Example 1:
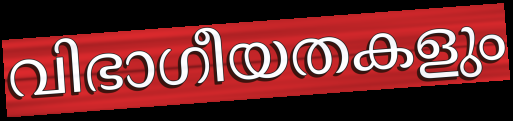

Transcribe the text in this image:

വിഭാഗീയതകളും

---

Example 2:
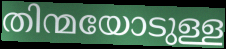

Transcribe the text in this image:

തിന്മയോടുള്ള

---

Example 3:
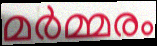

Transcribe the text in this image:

മർമ്മരം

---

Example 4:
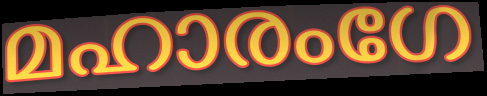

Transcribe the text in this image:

മഹാരംഗേ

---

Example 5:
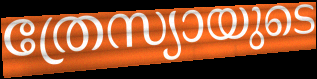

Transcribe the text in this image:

ത്രേസ്യായുടെ